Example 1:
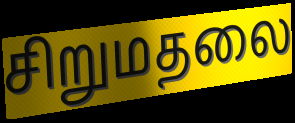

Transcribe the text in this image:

சிறுமதலை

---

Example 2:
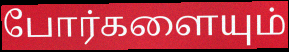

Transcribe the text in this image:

போர்களையும்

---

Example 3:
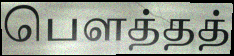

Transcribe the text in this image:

பௌத்தத்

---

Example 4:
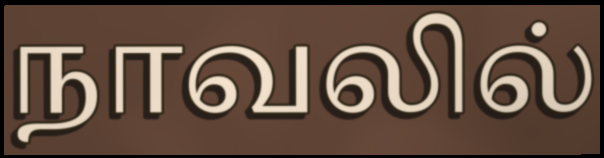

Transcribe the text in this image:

நாவலில்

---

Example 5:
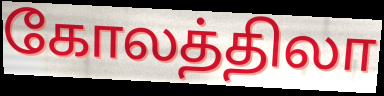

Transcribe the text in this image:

கோலத்திலா